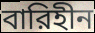
বারিহীন